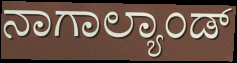
ನಾಗಾಲ್ಯಾಂಡ್